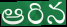
ఆరిన